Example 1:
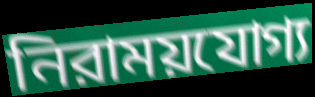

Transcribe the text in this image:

নিরাময়যোগ্য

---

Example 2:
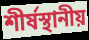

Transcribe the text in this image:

শীর্ষস্থানীয়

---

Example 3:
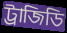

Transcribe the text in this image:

ট্রাজিডি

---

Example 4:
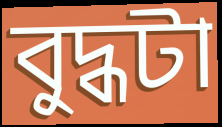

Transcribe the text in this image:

বুদ্ধটা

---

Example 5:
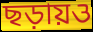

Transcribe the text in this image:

ছড়ায়ও